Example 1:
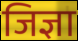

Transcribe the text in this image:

जिज्ञा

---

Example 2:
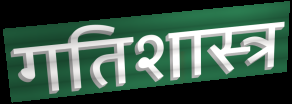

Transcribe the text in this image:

गतिशास्त्र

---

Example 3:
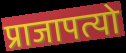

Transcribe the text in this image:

प्राजापत्यो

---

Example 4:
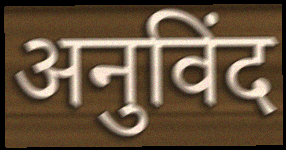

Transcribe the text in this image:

अनुविंद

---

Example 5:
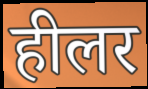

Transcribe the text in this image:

हीलर